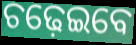
ଚଢ଼େଇବେ